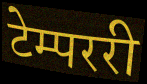
टेम्पररी